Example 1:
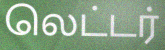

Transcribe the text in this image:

லெட்டர்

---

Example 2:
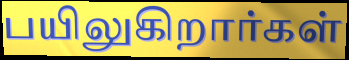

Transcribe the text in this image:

பயிலுகிறார்கள்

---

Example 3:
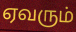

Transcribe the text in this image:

ஏவரும்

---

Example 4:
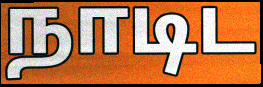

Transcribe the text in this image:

நாடிட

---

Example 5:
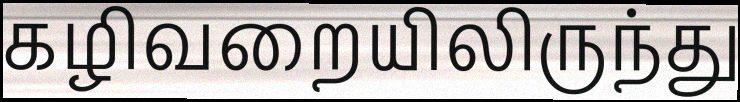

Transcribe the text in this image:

கழிவறையிலிருந்து